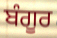
ਬੰਗੂਰ